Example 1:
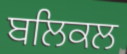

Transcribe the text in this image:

ਬਲਿਕਲ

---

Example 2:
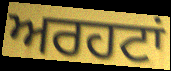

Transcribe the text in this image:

ਅਰਹਟਾਂ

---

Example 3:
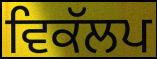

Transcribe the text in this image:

ਵਿਕੱਲਪ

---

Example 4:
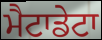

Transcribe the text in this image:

ਮੈਟਾਡੇਟਾ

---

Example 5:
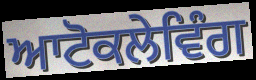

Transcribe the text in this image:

ਆਟੋਕਲੇਵਿੰਗ